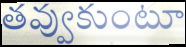
తవ్వుకుంటూ